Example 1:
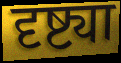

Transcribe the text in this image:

दृष्ट्या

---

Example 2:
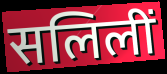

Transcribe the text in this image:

सलिलीं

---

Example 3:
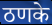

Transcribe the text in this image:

ठणके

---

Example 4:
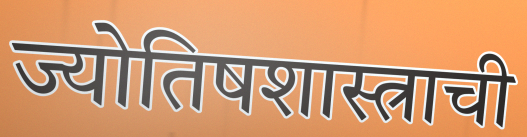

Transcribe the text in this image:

ज्योतिषशास्त्राची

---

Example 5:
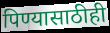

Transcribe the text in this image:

पिण्यासाठीही